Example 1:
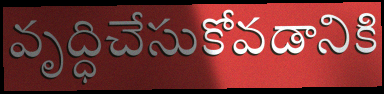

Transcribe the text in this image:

వృద్ధిచేసుకోవడానికి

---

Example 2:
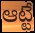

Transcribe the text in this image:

ఆట్టే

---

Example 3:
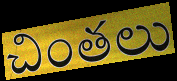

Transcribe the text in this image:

చింతలు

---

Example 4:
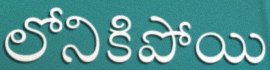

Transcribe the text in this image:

లోనికిపోయి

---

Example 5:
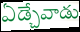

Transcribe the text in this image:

ఏడ్చేవాడు